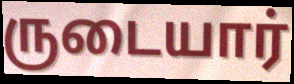
ருடையார்